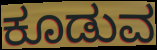
ಕೂಡುವ